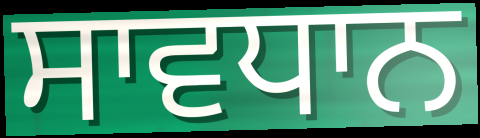
ਸਾਵਧਾਨ